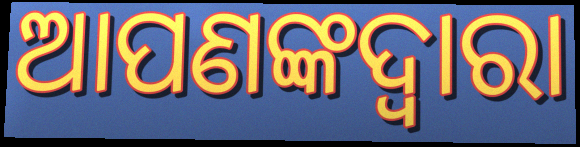
ଆପଣଙ୍କଦ୍ବାରା